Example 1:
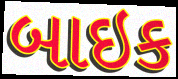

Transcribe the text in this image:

બાઇક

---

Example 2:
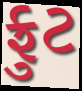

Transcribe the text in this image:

ફ્રુટ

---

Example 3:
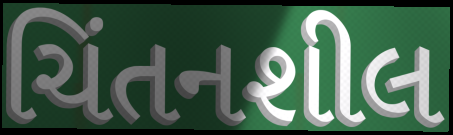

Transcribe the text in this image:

ચિંતનશીલ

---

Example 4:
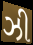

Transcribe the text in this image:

ઝી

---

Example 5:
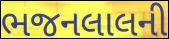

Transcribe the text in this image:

ભજનલાલની